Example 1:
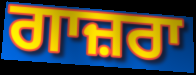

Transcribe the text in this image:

ਗਾਜ਼ਰਾ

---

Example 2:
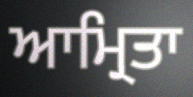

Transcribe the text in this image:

ਆਮ੍ਰਿਤਾ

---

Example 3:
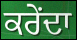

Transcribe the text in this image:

ਕਰੇਂਦਾ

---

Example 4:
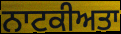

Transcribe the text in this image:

ਨਾਟਕੀਅਤਾ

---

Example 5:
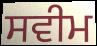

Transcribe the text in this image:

ਸਵੀਮ